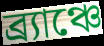
ব্র্যাঞ্চে